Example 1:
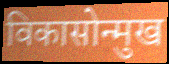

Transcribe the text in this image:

विकासोन्मुख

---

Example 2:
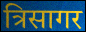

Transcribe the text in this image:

त्रिसागर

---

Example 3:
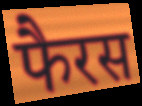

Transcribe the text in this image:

फैरस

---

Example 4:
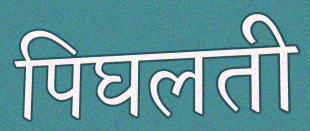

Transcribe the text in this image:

पिघलती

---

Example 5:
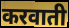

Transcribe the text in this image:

करवाती